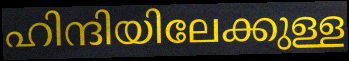
ഹിന്ദിയിലേക്കുള്ള